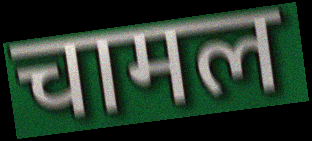
चामल